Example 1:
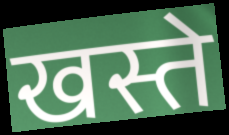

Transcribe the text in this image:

खस्ते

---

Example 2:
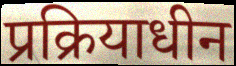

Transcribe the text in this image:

प्रक्रियाधीन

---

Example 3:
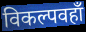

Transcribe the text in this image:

विकल्पवहाँ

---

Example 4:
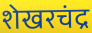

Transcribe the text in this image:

शेखरचंद्र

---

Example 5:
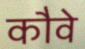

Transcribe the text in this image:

कौवे